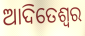
ଆଦିତେଶ୍ଵର